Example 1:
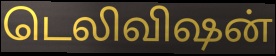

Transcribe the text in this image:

டெலிவிஷன்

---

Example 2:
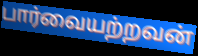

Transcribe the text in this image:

பார்வையற்றவன்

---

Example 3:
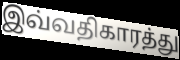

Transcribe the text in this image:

இவ்வதிகாரத்து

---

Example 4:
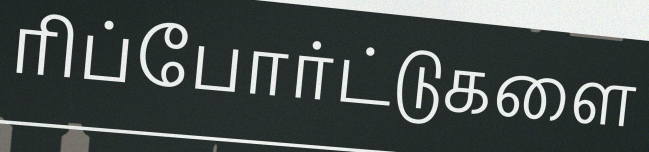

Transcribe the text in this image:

ரிப்போர்ட்டுகளை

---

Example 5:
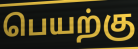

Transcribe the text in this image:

பெயற்கு